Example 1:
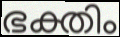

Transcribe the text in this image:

ഭക്തിം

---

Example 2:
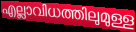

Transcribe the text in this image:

എല്ലാവിധത്തിലുമുള്ള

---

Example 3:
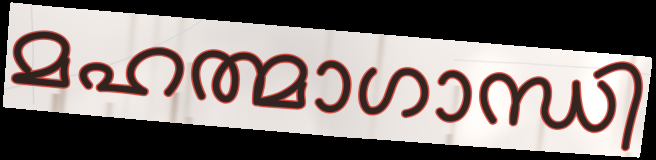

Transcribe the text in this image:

മഹത്മാഗാന്ധി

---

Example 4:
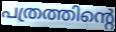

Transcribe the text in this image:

പത്രത്തിന്റെ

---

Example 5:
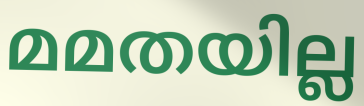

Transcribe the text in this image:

മമതയില്ല